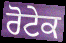
ਰੋਟੇਕ